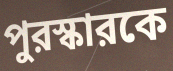
পুরস্কারকে